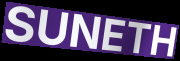
SUNETH